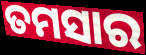
ତମସାର